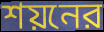
শয়নের